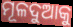
ମୂଳଦୁଆକୁ